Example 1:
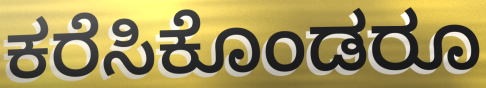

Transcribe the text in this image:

ಕರೆಸಿಕೊಂಡರೂ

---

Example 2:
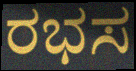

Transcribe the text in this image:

ರಭಸ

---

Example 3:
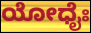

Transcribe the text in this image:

ಯೋಧೈಃ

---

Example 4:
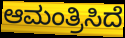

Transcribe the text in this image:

ಆಮಂತ್ರಿಸಿದೆ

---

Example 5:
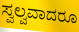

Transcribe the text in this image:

ಸ್ವಲ್ವವಾದರೂ